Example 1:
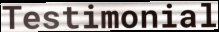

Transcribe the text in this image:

Testimonial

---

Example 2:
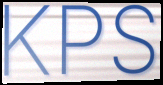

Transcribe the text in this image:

KPS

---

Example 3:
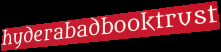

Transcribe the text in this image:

hyderabadbooktrust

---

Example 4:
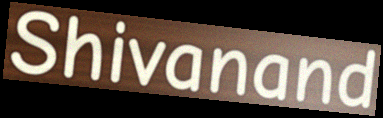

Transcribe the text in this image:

Shivanand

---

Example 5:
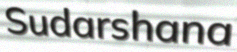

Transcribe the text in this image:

Sudarshana